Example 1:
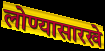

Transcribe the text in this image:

लोण्यासारखे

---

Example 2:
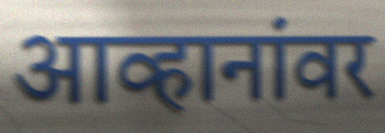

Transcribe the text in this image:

आव्हानांवर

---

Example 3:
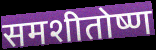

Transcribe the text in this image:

समशीतोष्ण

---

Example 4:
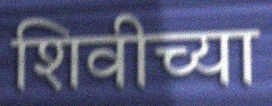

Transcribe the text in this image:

शिवीच्या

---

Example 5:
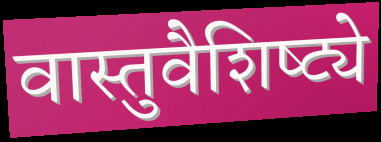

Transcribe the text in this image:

वास्तुवैशिष्ट्ये